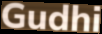
Gudhi